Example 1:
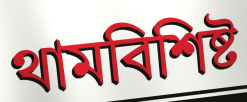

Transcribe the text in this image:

থামবিশিষ্ট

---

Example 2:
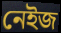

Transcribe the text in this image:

নেইজ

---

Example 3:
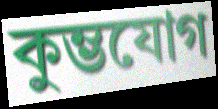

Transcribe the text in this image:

কুম্ভযোগ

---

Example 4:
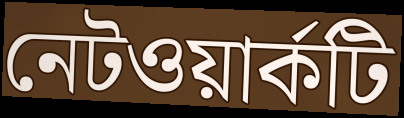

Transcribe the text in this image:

নেটওয়ার্কটি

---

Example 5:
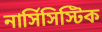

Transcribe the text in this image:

নার্সিসিস্টিক